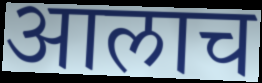
आलाच